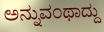
ಅನ್ನುವಂಥಾದ್ದು